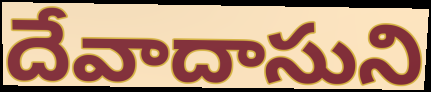
దేవాదాసుని